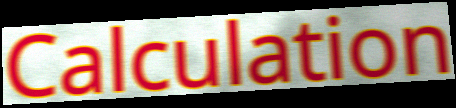
Calculation